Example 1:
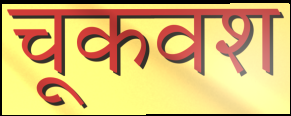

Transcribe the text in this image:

चूकवश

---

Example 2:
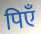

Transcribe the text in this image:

पिएँ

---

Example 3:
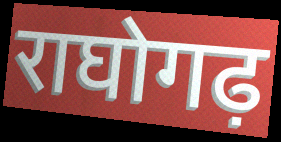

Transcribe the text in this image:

राघोगढ़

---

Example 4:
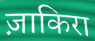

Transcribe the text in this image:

ज़ाकिरा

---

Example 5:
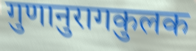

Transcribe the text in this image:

गुणानुरागकुलक